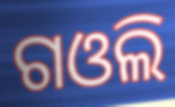
ଗଓଲି